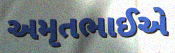
અમૃતભાઈએ